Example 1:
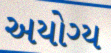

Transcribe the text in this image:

અયોગ્ય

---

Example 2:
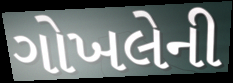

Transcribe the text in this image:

ગોખલેની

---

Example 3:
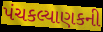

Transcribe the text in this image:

પંચકલ્યાણકની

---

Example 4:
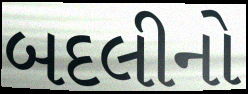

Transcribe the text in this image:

બદલીનો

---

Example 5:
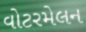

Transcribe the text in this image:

વોટરમેલન